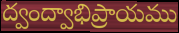
ద్వంద్వాభిప్రాయము